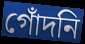
গোঁদনি